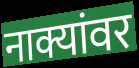
नाक्यांवर